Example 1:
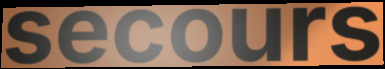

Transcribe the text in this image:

secours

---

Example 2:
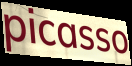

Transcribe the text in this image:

picasso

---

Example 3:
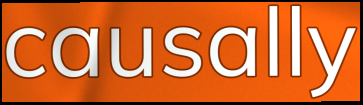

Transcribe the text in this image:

causally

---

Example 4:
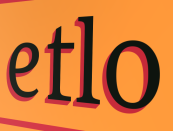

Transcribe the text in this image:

etlo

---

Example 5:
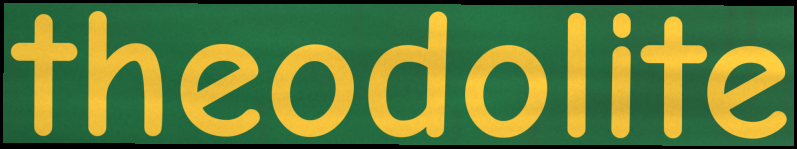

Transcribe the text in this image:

theodolite